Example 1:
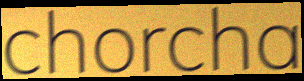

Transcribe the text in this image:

chorcha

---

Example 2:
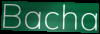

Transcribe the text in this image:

Bacha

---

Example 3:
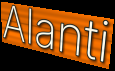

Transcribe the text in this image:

Alanti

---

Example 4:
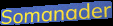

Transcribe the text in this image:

Somanader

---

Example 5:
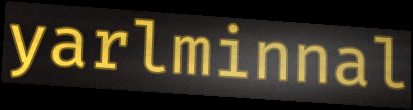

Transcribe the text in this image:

yarlminnal